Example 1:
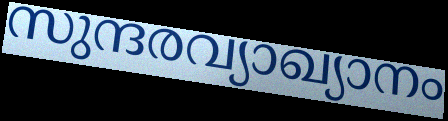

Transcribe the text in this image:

സുന്ദരവ്യാഖ്യാനം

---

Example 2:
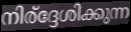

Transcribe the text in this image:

നിര്ദ്ദേശിക്കുന്ന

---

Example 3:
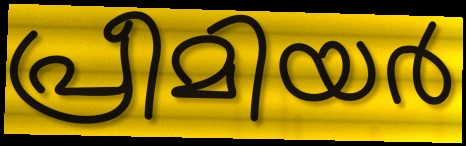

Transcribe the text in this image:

പ്രീമിയർ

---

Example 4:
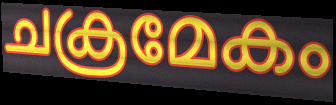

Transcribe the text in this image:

ചക്രമേകം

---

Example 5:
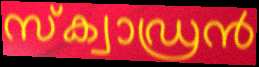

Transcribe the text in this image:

സ്ക്വാഡ്രൻ